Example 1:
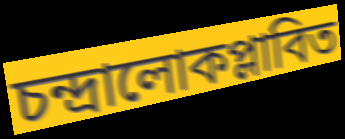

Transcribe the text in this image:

চন্দ্রালোকপ্লাবিত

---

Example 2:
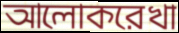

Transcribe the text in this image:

আলোকরেখা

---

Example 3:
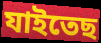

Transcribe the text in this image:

যাইতেছ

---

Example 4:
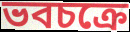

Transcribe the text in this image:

ভবচক্রে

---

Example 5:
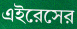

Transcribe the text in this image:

এইরেসের